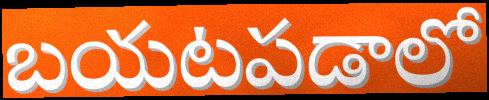
బయటపడాలో